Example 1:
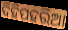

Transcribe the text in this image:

ଦିହିପହରିଆ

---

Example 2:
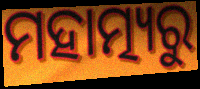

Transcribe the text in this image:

ମହାତ୍ମ୍ୟରୁ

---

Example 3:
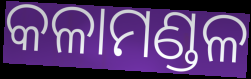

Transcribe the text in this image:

କଳାମଣ୍ଡଳ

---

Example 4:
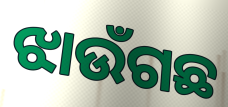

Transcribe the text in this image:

ଝାଉଁଗଛ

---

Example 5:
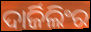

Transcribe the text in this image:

ଦାର୍ଜିଲିଂର